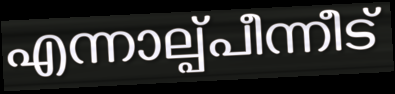
എന്നാല്പ്പീന്നീട്